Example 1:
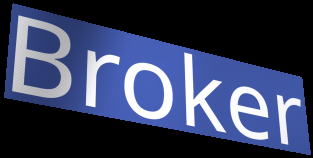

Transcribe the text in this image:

Broker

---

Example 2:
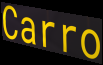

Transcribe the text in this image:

Carro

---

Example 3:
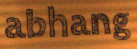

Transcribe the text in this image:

abhang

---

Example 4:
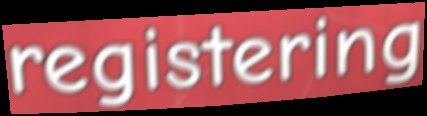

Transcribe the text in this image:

registering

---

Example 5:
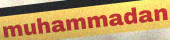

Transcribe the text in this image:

muhammadan